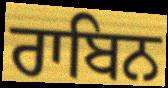
ਰਾਬਿਨ